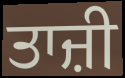
ਤਾਜ਼ੀ